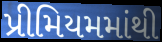
પ્રીમિયમમાંથી